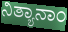
ನಿತ್ಯಾನಾಂ